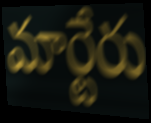
మార్టేరు